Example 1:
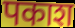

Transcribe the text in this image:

पकाश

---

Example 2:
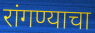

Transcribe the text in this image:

रांगण्याचा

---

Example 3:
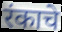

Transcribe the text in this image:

रंकाचे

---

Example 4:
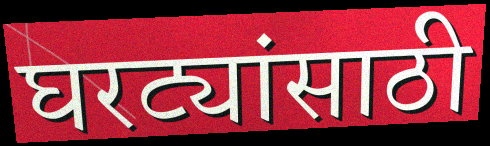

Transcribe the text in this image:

घरट्यांसाठी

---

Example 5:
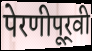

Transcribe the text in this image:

पेरणीपूर्वी